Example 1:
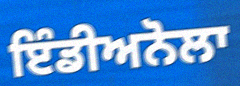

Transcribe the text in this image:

ਇੰਡੀਅਨੋਲਾ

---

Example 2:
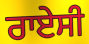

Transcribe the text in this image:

ਰਾਏਸੀ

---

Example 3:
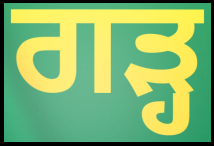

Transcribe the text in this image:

ਗੜ੍ਹ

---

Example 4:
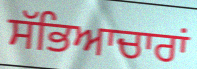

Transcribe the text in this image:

ਸੱਭਿਆਚਾਰਾਂ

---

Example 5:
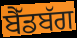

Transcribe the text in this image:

ਬੈੱਡਬੱਗ